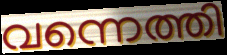
വന്നെത്തി